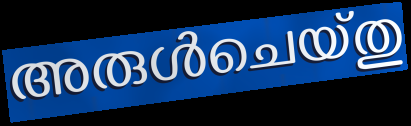
അരുൾചെയ്തു